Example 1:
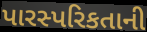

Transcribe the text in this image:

પારસ્પરિકતાની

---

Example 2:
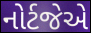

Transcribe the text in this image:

નોર્ટજેએ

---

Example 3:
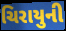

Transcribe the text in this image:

ચિરાયુની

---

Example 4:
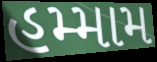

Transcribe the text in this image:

હમ્મામ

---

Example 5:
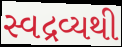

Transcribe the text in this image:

સ્વદ્રવ્યથી